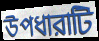
উপধারাটি